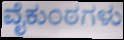
ವೈಕುಂಠಗಳು